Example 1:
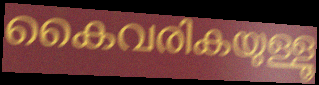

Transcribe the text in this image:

കൈവരികയുള്ളൂ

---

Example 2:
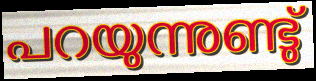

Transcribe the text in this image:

പറയുന്നുണ്ടു്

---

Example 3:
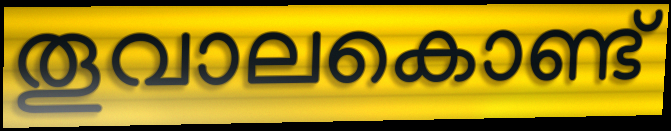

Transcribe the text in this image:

തൂവാലകൊണ്ട്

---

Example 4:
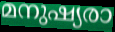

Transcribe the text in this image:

മനുഷ്യരാ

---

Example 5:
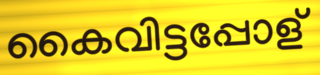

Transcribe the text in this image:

കൈവിട്ടപ്പോള്